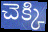
చెక్కి